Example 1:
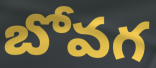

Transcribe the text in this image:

బోవగ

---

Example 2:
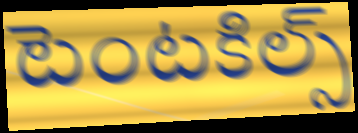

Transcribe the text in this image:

టెంటకిల్స్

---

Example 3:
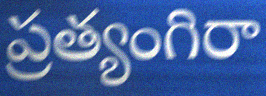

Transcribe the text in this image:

ప్రత్యంగిరా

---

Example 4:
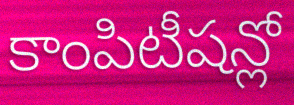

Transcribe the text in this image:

కాంపిటీషన్లో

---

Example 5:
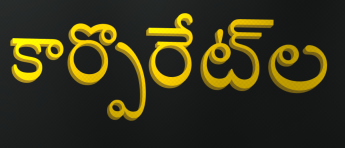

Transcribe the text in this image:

కార్పొరేట్‌ల